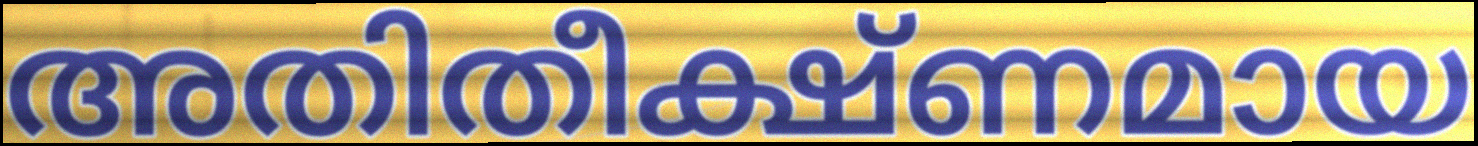
അതിതീക്ഷ്ണമായ